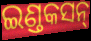
ଇଣ୍ଡକସନ୍